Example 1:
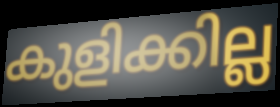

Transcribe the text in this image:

കുളിക്കില്ല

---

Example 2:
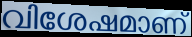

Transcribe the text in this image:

വിശേഷമാണ്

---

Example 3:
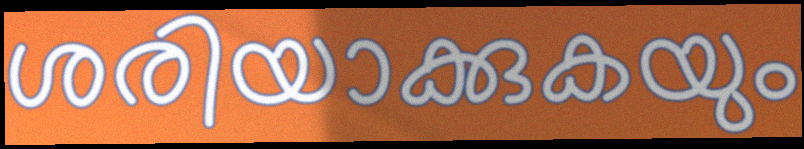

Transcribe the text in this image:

ശരിയാക്കുകയും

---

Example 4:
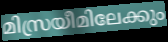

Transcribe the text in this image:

മിസ്രയീമിലേക്കും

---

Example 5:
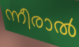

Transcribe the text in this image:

ന്നീരാൽ